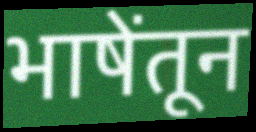
भाषेंतून